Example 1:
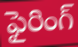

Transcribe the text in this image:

ఫైరింగ్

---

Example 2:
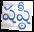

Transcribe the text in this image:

షష్ఠీ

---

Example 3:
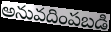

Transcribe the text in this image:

అనువదింపబడి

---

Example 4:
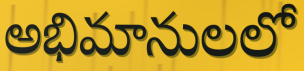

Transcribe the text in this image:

అభిమానులలో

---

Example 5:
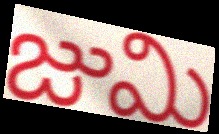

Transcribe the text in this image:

జుమి